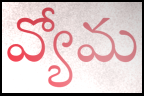
వ్యోమ